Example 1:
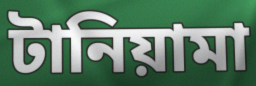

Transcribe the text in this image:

টানিয়ামা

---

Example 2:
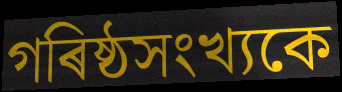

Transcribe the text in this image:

গৰিষ্ঠসংখ্যকে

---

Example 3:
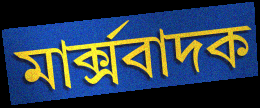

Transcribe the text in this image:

মাৰ্ক্সবাদক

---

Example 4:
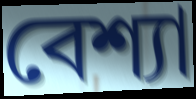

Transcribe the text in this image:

বেশ্যা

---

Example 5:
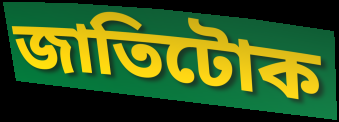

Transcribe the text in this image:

জাতিটোক